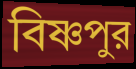
বিষ্ণপুর